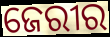
ଜେରୀର